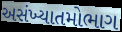
અસંખ્યાતમોભાગ